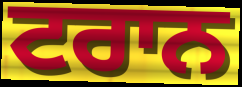
ਟਰਾਨ